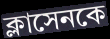
ক্লাসেনকে